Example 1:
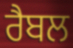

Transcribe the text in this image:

ਰੈਬਲ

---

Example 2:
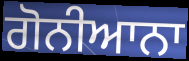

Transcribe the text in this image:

ਗੋਨੀਆਨਾ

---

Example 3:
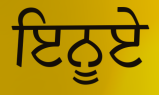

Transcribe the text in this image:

ਇਨੂਏ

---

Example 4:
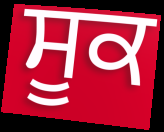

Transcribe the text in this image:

ਸੂਕ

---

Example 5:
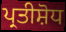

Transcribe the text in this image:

ਪ੍ਰਤੀਸ਼ੋਧ